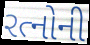
રત્નોની